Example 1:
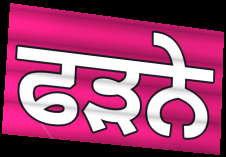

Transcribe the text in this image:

ਫੜਨੇ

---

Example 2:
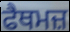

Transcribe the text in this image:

ਫੈਥਮਜ਼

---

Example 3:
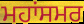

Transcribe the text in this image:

ਮਹਾਂਸਮਰ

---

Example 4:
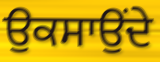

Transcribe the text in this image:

ਉਕਸਾਉਂਦੇ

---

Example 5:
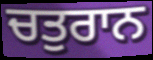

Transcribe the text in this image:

ਚਤੁਰਾਨ